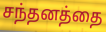
சந்தனத்தை